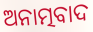
ଅନାତ୍ମବାଦ